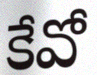
కేవో